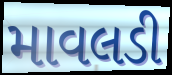
માવલડી